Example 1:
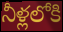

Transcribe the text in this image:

నీళ్లలోకి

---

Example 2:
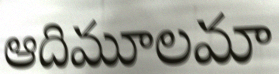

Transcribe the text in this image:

ఆదిమూలమా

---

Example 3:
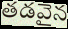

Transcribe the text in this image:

తడవైన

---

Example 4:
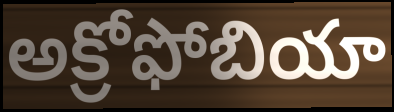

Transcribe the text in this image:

అక్రోఫోబియా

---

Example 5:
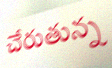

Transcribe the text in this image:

చేరుతున్న